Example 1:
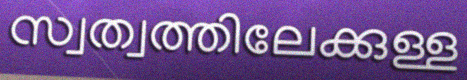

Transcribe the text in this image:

സ്വത്വത്തിലേക്കുള്ള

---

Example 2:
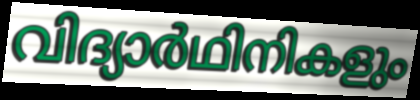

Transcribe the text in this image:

വിദ്യാർഥിനികളും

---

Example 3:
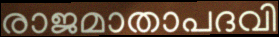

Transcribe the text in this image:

രാജമാതാപദവി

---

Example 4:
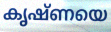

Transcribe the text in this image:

കൃഷ്ണയെ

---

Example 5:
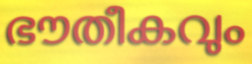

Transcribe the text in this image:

ഭൗതീകവും